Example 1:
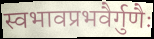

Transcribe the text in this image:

स्वभावप्रभवैर्गुणैः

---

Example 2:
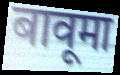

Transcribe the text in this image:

बावूमा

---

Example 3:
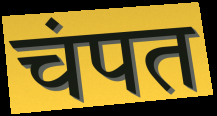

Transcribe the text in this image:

चंपत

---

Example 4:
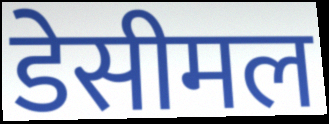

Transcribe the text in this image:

डेसीमल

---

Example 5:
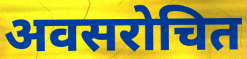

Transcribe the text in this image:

अवसरोचित